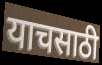
याचसाठी